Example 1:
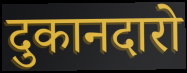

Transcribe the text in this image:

दुकानदारो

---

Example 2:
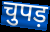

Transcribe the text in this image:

चुपड़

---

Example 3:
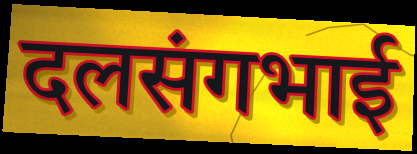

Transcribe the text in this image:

दलसंगभाई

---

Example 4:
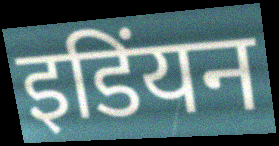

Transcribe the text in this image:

इडिंयन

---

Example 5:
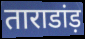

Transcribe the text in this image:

ताराडांड़